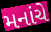
મનાંચે